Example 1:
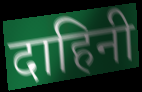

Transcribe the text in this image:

दाहिनी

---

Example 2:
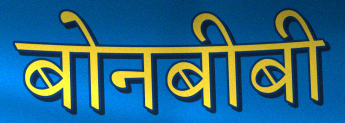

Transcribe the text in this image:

बोनबीबी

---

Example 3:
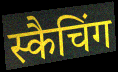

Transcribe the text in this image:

स्कैचिंग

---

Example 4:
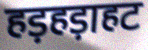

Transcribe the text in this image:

हड़हड़ाहट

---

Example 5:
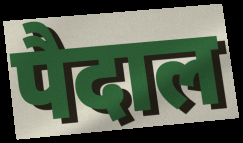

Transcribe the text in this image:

पैदाल